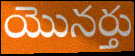
యొనర్తు